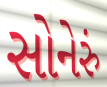
સોનેરું